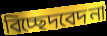
বিচ্ছেদবেদনা